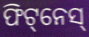
ଫିଟ୍‌ନେସ୍